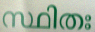
സ്ഥിതഃ